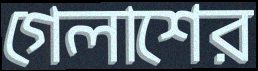
গেলাশের